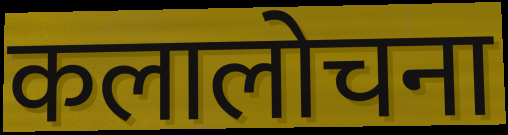
कलालोचना